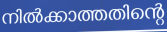
നിൽക്കാത്തതിന്റെ